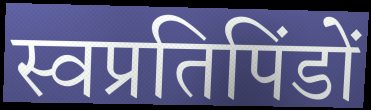
स्वप्रतिपिंडों